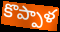
కొప్పాళ